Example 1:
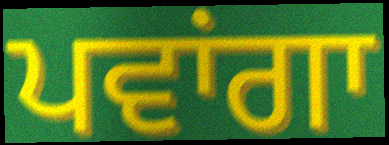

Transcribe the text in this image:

ਪਵਾਂਗਾ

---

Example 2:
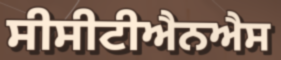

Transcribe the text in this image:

ਸੀਸੀਟੀਐਨਐਸ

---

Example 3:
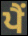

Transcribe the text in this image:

ਪੈਂ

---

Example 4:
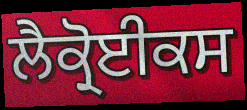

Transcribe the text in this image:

ਲੈਕ੍ਰੋਈਕਸ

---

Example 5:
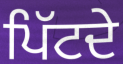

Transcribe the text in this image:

ਪਿੱਟਦੇ